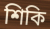
শিকি